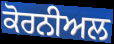
ਕੋਰਨੀਅਲ